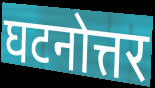
घटनोत्तर